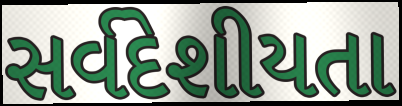
સર્વદેશીયતા